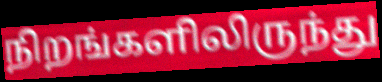
நிறங்களிலிருந்து